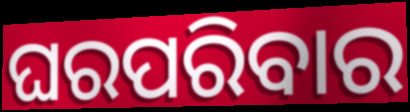
ଘରପରିବାର